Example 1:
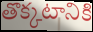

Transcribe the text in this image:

తొక్కటానికి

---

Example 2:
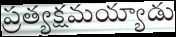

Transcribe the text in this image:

ప్రత్యక్షమయ్యాడు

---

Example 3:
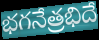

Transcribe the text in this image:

భగనేత్రభిదే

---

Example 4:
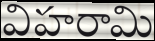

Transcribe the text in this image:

విహరామి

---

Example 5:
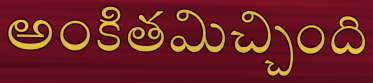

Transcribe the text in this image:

అంకితమిచ్చింది